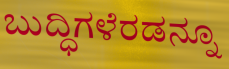
ಬುದ್ಧಿಗಳೆರಡನ್ನೂ